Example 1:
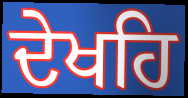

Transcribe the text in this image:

ਦੇਖਹਿ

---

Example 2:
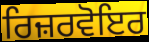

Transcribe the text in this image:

ਰਿਜ਼ਰਵੋਇਰ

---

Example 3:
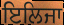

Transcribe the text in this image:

ਇਲਿਜਾ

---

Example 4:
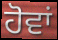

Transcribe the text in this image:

ਹੋਵਾਂ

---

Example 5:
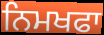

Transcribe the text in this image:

ਨਿਮਖਫਾ